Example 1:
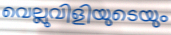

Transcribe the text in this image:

വെല്ലുവിളിയുടെയും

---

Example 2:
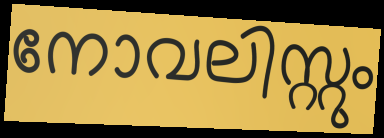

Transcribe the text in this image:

നോവലിസ്റ്റും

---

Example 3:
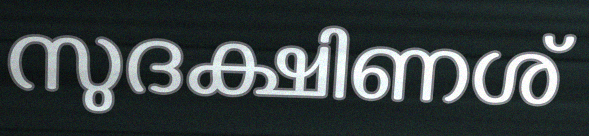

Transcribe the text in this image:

സുദക്ഷിണശ്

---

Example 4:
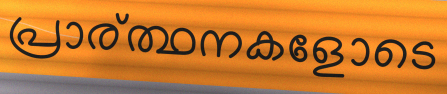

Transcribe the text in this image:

പ്രാര്ത്ഥനകളോടെ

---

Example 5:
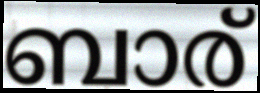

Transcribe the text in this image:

ബാര്